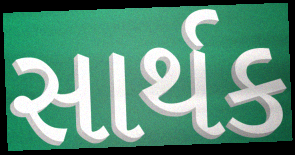
સાર્થક